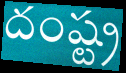
దంష్ట్ర